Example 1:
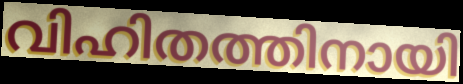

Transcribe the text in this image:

വിഹിതത്തിനായി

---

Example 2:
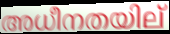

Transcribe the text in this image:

അധീനതയില്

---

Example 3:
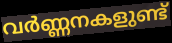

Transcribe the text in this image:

വർണ്ണനകളുണ്ട്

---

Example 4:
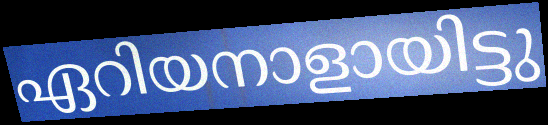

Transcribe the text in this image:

ഏറിയനാളായിട്ടു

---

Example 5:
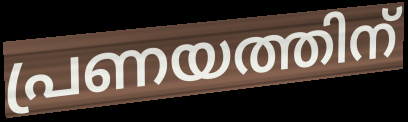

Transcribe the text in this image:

പ്രണയത്തിന്